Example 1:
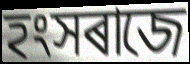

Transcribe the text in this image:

হংসৰাজে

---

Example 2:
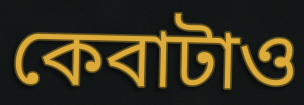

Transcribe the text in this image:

কেবাটাও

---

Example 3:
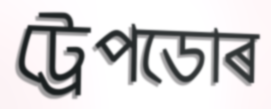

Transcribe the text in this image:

ট্ৰেপডোৰ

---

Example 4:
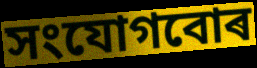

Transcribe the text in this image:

সংযোগবোৰ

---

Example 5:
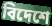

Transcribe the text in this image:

বিদেশে